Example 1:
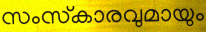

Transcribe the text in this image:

സംസ്‌കാരവുമായും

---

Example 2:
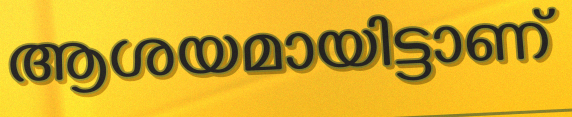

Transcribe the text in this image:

ആശയമായിട്ടാണ്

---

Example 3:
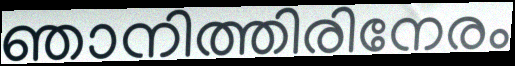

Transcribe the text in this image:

ഞാനിത്തിരിനേരം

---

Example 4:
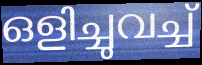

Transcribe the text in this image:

ഒളിച്ചുവച്ച്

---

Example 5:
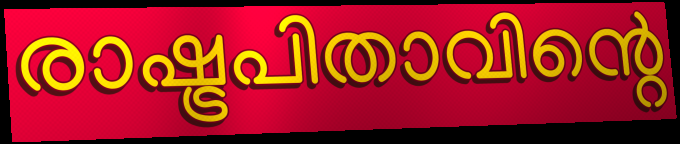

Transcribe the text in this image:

രാഷ്ട്രപിതാവിന്റെ